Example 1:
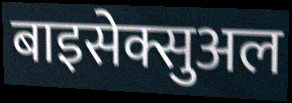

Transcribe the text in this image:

बाइसेक्सुअल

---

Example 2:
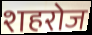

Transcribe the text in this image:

शहरोज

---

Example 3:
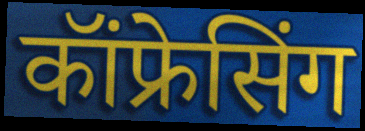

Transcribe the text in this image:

कॉंफ्रेसिंग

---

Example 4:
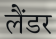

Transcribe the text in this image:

लैंडर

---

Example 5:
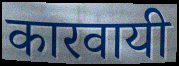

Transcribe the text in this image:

कारवायी